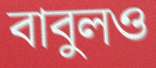
বাবুলও